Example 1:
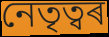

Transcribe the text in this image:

নেতৃত্বৰ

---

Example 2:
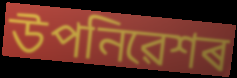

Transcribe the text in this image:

উপনিৱেশৰ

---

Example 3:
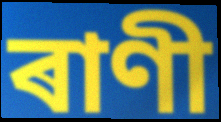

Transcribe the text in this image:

ৰাণী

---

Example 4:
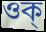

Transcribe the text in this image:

ওক্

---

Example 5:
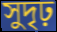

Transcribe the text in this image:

সুদৃঢ়